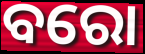
ବରୋ